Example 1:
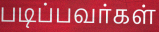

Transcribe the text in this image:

படிப்பவர்கள்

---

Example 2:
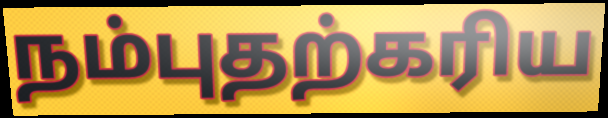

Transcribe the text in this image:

நம்புதற்கரிய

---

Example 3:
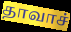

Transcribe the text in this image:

தாவாச்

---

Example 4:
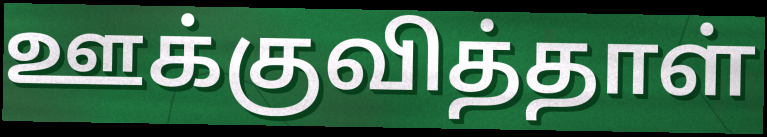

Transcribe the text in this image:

ஊக்குவித்தாள்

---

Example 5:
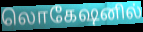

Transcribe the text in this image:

லொகேஷனில்